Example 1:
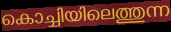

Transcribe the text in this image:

കൊച്ചിയിലെത്തുന്ന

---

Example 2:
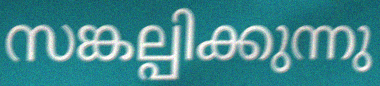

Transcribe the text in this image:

സങ്കല്പിക്കുന്നു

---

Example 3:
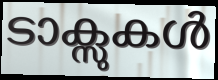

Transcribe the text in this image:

ടാക്സുകൾ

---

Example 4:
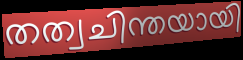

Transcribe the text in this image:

തത്വചിന്തയായി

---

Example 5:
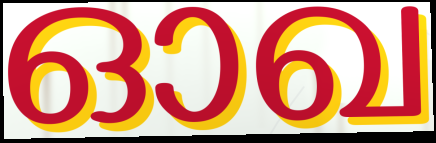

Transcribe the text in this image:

ഓഖ